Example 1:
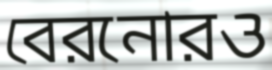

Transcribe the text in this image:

বেরনোরও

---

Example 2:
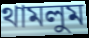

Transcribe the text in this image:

থামলুম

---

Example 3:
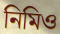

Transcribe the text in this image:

নিমিও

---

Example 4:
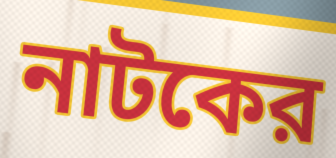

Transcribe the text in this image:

নাটকের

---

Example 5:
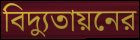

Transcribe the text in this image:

বিদ্যুতায়নের